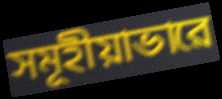
সমূহীয়াভাৱে